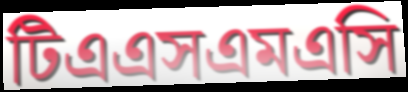
টিএএসএমএসি